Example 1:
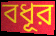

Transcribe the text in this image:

বধূর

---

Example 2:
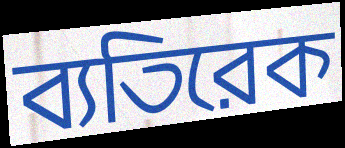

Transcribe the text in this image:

ব্যতিরেক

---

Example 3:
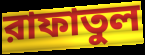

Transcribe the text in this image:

রাফাতুল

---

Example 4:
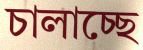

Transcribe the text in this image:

চালাচ্ছে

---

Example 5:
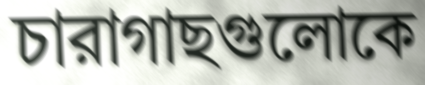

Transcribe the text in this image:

চারাগাছগুলোকে